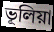
ভূলিয়া